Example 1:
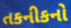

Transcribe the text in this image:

તકનીકનો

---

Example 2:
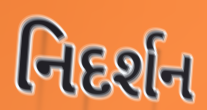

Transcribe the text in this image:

નિદર્શન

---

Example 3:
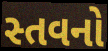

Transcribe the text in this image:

સ્તવનો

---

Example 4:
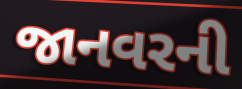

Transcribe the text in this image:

જાનવરની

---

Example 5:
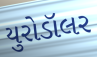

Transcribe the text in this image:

યુરોડૉલર